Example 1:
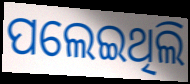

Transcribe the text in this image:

ପଲେଇଥିଲି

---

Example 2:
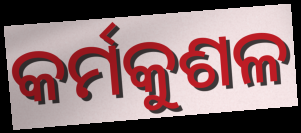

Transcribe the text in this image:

କର୍ମକୁଶଳ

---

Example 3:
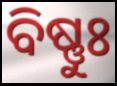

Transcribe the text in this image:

ବିଷ୍ଣୁଃ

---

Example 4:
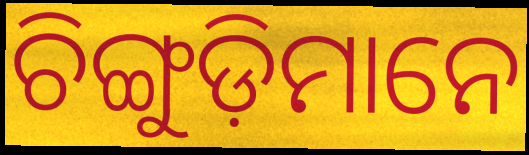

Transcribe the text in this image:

ଚିଙ୍ଗୁଡ଼ିମାନେ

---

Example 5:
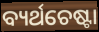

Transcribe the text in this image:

ବ୍ୟର୍ଥଚେଷ୍ଟା